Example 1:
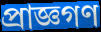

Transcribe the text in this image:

প্রাজ্ঞগণ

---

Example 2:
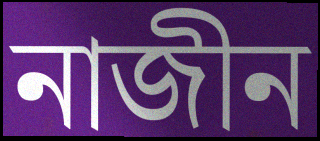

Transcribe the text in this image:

নাজীন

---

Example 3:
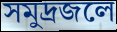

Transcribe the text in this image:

সমুদ্রজলে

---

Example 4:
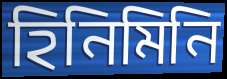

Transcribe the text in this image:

হিনিমিনি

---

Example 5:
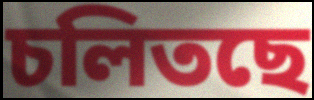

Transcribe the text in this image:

চলিতছে